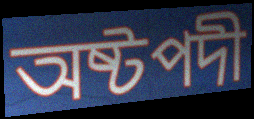
অষ্টপদী